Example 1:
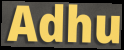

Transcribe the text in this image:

Adhu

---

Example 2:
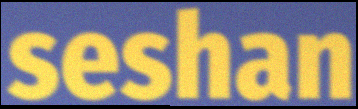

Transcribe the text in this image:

seshan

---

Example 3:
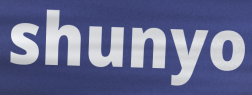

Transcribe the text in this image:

shunyo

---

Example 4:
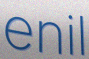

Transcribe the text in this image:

enil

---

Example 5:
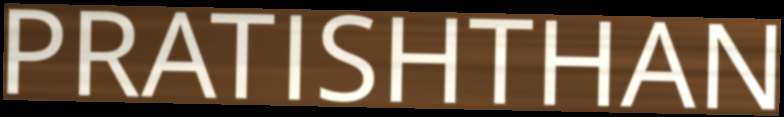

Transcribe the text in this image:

PRATISHTHAN